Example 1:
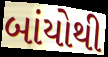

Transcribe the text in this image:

બાંયોથી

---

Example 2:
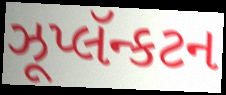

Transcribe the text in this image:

ઝૂપ્લૅન્કટન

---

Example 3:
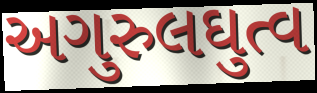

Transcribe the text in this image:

અગુરુલઘુત્વ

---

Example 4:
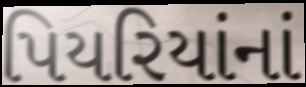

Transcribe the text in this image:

પિયરિયાંનાં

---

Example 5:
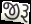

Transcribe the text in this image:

જીરૂ